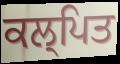
ਕਲ੍ਪਿਤ